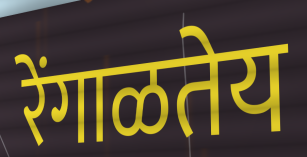
रेंगाळतेय